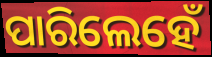
ପାରିଲେହେଁ